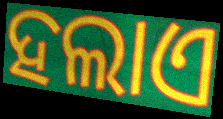
ହଲାଏ